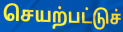
செயற்பட்டுச்